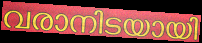
വരാനിടയായി